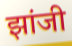
झांजी